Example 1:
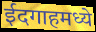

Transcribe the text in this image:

ईदगाहमध्ये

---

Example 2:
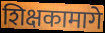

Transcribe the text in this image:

शिक्षकामागे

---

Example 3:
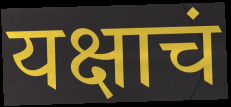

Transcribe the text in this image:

यक्षाचं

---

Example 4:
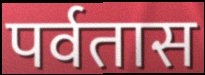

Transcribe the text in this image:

पर्वतास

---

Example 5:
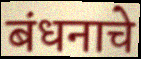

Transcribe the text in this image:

बंधनाचे